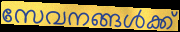
സേവനങ്ങൾക്ക്